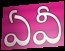
ఏవీ